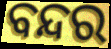
ବନ୍ଦର